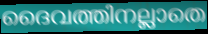
ദൈവത്തിനല്ലാതെ